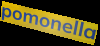
pomonella